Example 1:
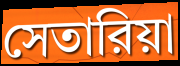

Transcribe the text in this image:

সেতারিয়া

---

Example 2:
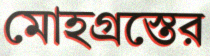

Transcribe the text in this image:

মোহগ্রস্তের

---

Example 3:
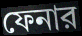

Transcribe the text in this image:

ফেনার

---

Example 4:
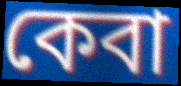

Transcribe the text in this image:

কেবা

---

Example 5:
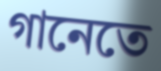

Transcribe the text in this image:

গানেতে